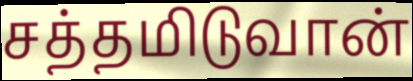
சத்தமிடுவான்